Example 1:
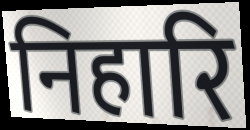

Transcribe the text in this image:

निहारि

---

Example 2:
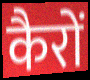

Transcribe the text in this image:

कैरों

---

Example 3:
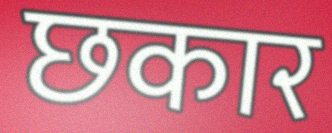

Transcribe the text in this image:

छकार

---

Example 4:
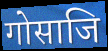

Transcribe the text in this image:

गोसाजि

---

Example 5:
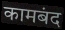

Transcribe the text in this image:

कामबंद